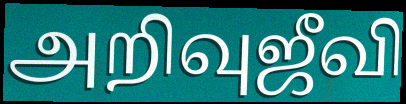
அறிவுஜீவி